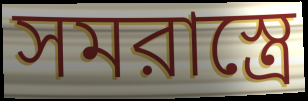
সমরাস্ত্রে